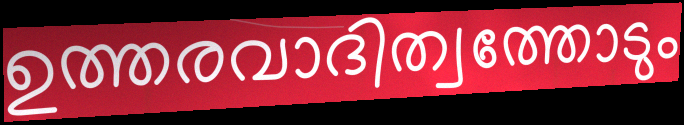
ഉത്തരവാദിത്വത്തോടും